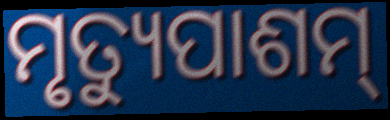
ମୃତ୍ୟୁପାଶମ୍